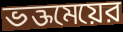
ভক্তমেয়ের